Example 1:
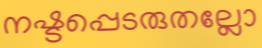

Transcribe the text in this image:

നഷ്ടപ്പെടരുതല്ലോ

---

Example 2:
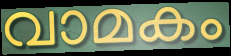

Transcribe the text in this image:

വാമകം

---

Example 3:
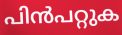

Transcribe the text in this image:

പിൻപറ്റുക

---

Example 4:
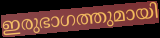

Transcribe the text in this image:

ഇരുഭാഗത്തുമായി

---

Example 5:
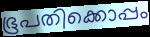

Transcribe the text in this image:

ഭൂപതിക്കൊപ്പം